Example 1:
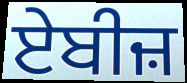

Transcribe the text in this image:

ਏਬੀਜ਼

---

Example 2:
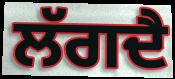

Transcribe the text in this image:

ਲੱਗਦੈ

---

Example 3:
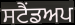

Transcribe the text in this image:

ਸਟੈਂਡਅਪ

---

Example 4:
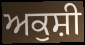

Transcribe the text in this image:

ਅਕੁਸ਼ੀ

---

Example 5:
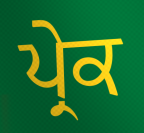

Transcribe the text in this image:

ਪ੍ਰੇਕ